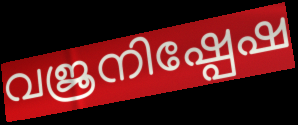
വജ്രനിഷ്പേഷ